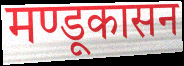
मण्डूकासन